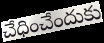
చేధించేందుకు